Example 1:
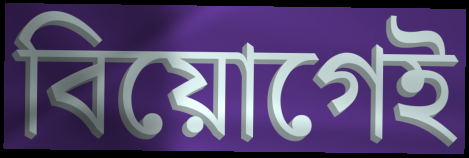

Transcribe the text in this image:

বিয়োগেই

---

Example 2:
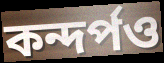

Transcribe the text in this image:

কন্দর্পও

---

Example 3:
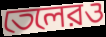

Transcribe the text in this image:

তেলেরও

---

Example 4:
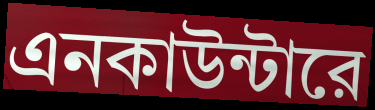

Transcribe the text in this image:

এনকাউন্টারে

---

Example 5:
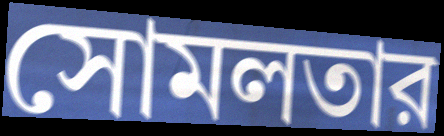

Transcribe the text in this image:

সোমলতার